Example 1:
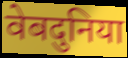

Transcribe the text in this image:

वेबदुनिया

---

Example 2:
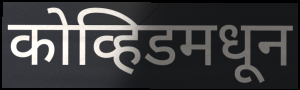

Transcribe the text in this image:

कोव्हिडमधून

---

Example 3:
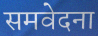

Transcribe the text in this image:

समवेदना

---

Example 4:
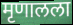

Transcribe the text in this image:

मृणालला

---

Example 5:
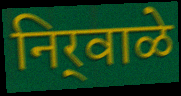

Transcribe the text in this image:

निर्वाळे